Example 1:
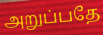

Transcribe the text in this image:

அறுப்பதே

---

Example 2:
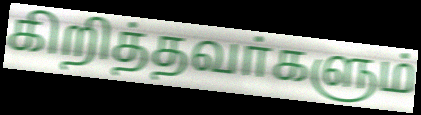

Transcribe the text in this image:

கிறித்தவர்களும்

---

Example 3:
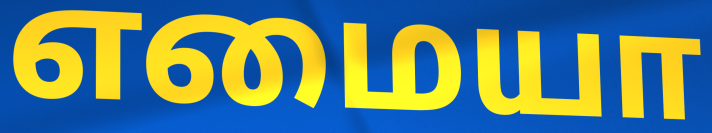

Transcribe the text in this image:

எமையா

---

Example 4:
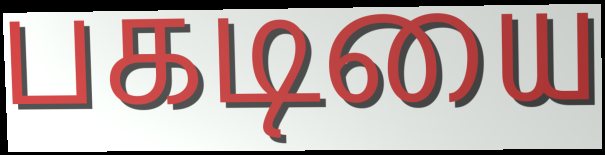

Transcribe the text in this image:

பகடியை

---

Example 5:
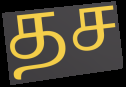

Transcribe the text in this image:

தச